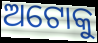
ଅଟୋକୁ